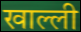
खाल्ली